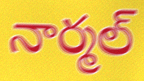
నార్మల్